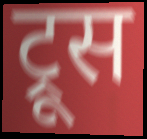
ट्रूस